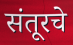
संतूरचे